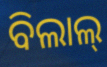
ବିଲାଲ୍